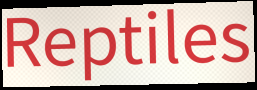
Reptiles